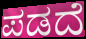
ಪಡದೆ